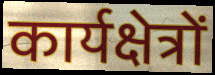
कार्यक्षेत्रों